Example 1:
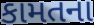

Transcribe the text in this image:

કામતના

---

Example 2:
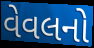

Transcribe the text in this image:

વેવલનો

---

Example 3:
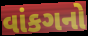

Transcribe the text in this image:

વાંકગનો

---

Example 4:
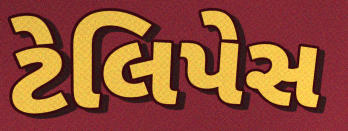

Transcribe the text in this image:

ટેલિપેસ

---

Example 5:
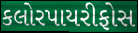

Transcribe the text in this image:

કલોરપાયરીફોસ